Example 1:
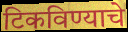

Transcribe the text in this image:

टिकविण्याचे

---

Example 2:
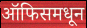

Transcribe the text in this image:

ऑफिसमधून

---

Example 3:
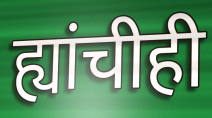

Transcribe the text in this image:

ह्यांचीही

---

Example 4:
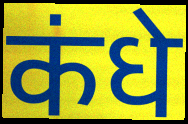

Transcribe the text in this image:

कंधे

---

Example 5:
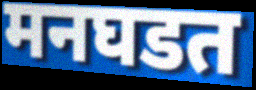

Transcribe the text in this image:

मनघडत